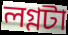
লগ্নটা